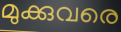
മുക്കുവരെ